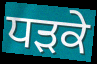
ਧੜਕੇ